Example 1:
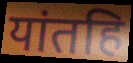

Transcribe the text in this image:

यांतहि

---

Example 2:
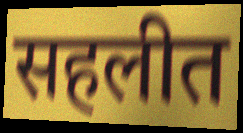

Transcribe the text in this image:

सहलीत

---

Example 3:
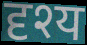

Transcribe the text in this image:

दृश्य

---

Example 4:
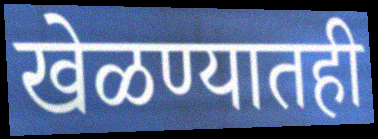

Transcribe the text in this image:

खेळण्यातही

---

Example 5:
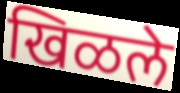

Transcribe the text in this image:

खिळले